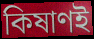
কিষাণই